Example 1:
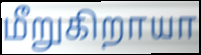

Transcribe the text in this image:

மீறுகிறாயா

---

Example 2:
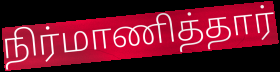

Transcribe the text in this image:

நிர்மாணித்தார்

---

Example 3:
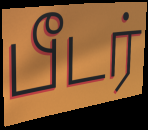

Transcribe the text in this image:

பீடர்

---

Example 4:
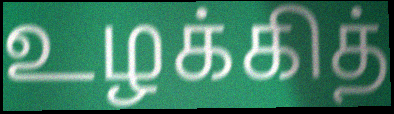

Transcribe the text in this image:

உழக்கித்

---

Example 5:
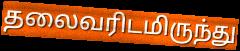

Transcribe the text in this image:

தலைவரிடமிருந்து